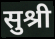
सुश्री